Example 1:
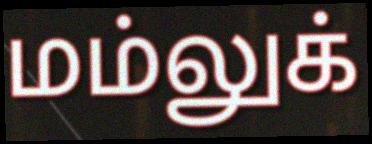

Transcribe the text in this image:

மம்லுக்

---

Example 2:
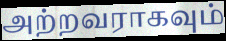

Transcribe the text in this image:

அற்றவராகவும்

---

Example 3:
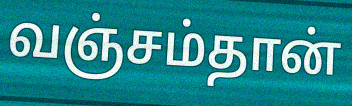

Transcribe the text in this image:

வஞ்சம்தான்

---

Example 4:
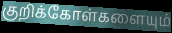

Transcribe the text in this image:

குறிக்கோள்களையும்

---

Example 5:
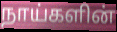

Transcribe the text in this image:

நாய்களின்